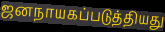
ஜனநாயகப்படுத்தியது